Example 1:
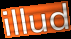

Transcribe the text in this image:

illud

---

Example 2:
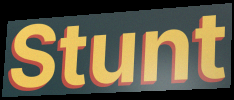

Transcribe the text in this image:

Stunt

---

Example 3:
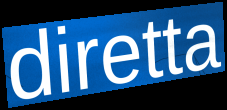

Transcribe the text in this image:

diretta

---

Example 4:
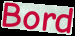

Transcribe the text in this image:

Bord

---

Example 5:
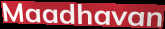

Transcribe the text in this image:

Maadhavan